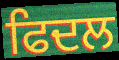
ਫਿਦਲ